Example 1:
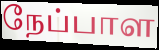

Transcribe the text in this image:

நேப்பாள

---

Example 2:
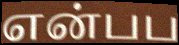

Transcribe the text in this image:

என்பப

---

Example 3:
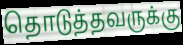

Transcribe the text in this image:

தொடுத்தவருக்கு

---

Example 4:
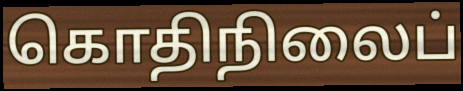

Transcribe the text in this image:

கொதிநிலைப்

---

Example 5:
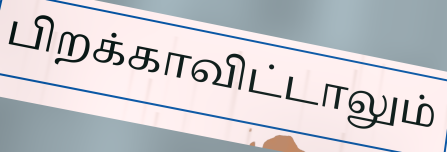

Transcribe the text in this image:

பிறக்காவிட்டாலும்